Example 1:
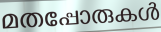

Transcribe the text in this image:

മതപ്പോരുകൾ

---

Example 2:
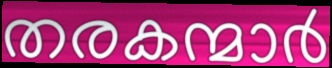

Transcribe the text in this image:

തരകന്മാർ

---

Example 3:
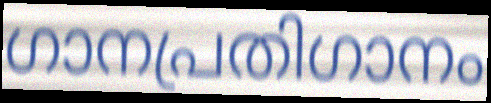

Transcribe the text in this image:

ഗാനപ്രതിഗാനം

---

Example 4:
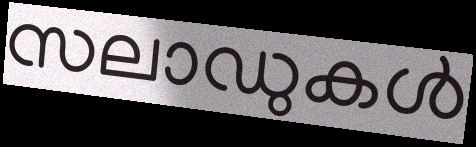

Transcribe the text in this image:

സലാഡുകൾ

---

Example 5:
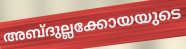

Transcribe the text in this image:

അബ്ദുല്ലക്കോയയുടെ